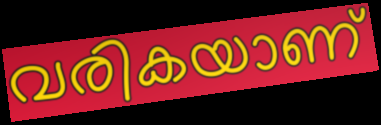
വരികയാണ്